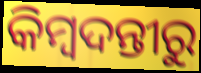
କିମ୍ବଦନ୍ତୀରୁ